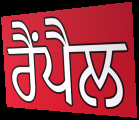
ਰੈਂਪੈਲ